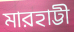
মারহাট্টী